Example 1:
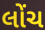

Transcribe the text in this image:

લોંચ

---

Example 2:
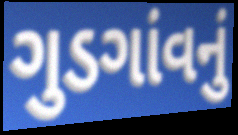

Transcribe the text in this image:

ગુડગાંવનું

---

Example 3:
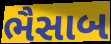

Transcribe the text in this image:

ભૈસાબ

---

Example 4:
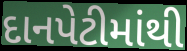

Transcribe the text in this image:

દાનપેટીમાંથી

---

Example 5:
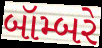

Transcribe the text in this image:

બૉમ્બરે